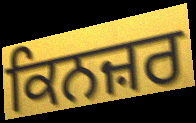
ਕਿਨਜ਼ਰ